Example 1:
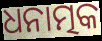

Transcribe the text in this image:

ଧନାତ୍ମକ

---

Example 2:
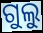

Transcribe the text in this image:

ଗୁଲୁ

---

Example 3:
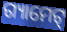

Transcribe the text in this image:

ଗ୍ୟାମେଟ୍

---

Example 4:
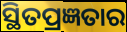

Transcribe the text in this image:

ସ୍ଥିତପ୍ରଜ୍ଞତାର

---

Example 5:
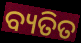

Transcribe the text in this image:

ବ୍ୟତିତ